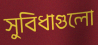
সুবিধাগুলো